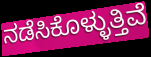
ನಡೆಸಿಕೊಳ್ಳುತ್ತಿವೆ